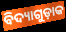
ବିଦ୍ୟାଗୁଡ଼ାକ